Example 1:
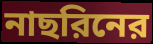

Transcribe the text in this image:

নাছরিনের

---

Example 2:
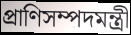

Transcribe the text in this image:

প্রাণিসম্পদমন্ত্রী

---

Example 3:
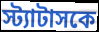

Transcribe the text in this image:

স্ট্যাটাসকে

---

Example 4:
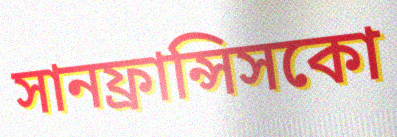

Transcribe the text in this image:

সানফ্রান্সিসকো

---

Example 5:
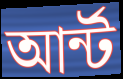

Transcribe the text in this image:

আর্ন্ট